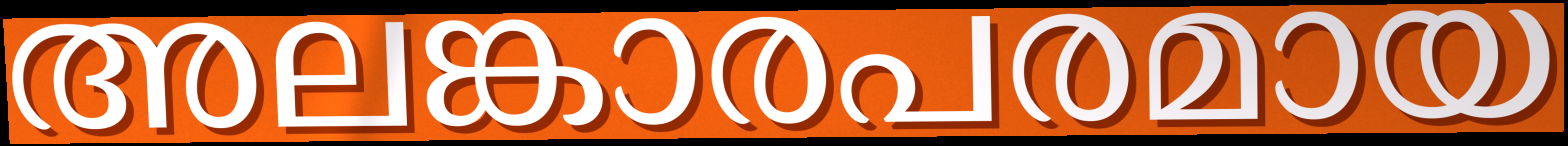
അലങ്കാരപരമായ